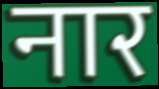
नार